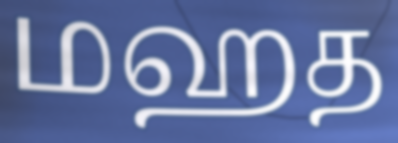
மஹத